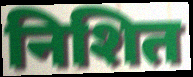
निशित